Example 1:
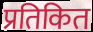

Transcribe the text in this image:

प्रतिकित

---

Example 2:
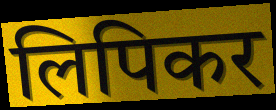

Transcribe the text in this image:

लिपिकर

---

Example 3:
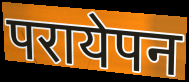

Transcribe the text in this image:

परायेपन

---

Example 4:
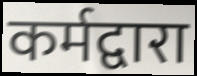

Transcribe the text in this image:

कर्मद्वारा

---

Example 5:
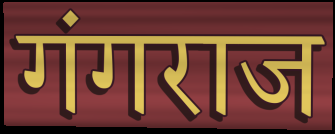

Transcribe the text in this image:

गंगराज